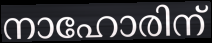
നാഹോരിന്